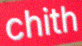
chith